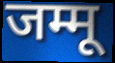
जम्मू